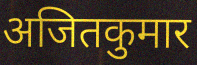
अजितकुमार